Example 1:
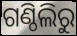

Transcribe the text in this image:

ଗଣ୍ଠିଲିରୁ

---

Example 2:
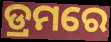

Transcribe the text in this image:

ଡ୍ରମରେ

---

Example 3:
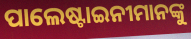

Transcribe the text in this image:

ପାଲେଷ୍ଟାଇନୀମାନଙ୍କୁ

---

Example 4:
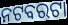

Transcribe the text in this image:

ନଟବରଟା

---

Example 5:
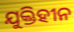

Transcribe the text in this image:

ଯୁକ୍ତିହୀନ